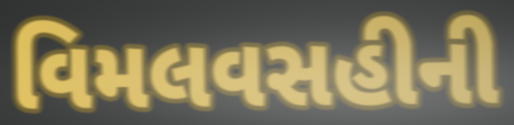
વિમલવસહીની